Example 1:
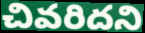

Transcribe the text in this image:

చివరిదని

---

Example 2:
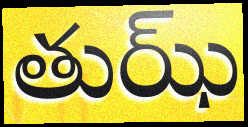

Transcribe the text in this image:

తుఝ్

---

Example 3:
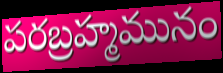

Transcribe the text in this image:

పరబ్రహ్మమునం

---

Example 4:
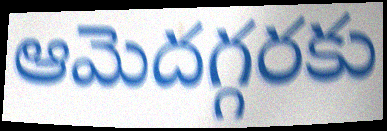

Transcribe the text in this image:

ఆమెదగ్గరకు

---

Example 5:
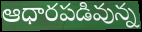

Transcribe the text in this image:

ఆధారపడివున్న